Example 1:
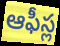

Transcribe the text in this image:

ఆఫీస్ల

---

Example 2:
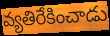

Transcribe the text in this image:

వ్యతిరేకించాడు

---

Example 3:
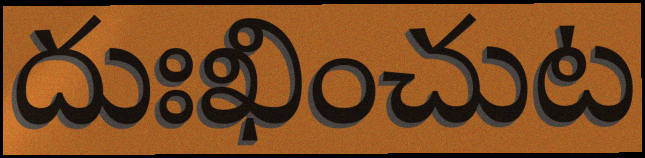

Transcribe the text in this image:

దుఃఖించుట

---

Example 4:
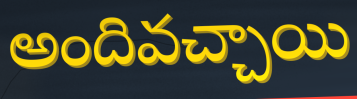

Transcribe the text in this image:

అందివచ్చాయి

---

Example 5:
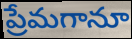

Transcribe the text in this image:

ప్రేమగానూ